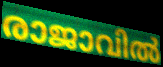
രാജാവിൽ